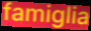
famiglia